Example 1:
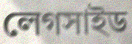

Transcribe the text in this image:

লেগসাইড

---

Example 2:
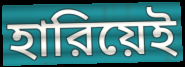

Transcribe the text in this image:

হারিয়েই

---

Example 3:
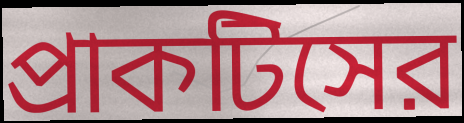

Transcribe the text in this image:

প্রাকটিসের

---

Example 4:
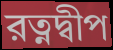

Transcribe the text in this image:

রত্নদ্বীপ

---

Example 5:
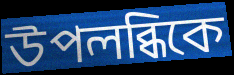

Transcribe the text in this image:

উপলব্ধিকে